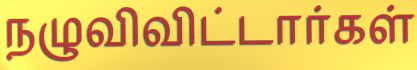
நழுவிவிட்டார்கள்